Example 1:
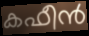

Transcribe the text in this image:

കഫീൻ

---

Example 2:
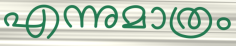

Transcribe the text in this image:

എന്നുമാത്രം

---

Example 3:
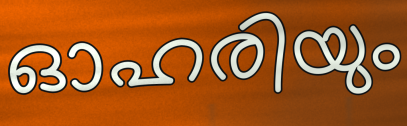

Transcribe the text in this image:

ഓഹരിയും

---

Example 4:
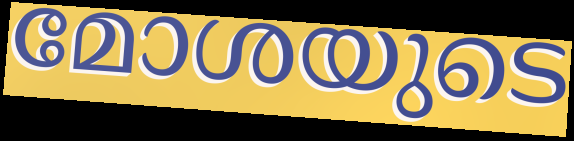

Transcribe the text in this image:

മോശയുടെ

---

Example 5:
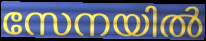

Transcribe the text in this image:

സേനയിൽ